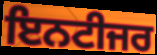
ਇਨਟੀਜਰ